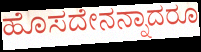
ಹೊಸದೇನನ್ನಾದರೂ